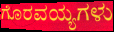
ಗೊರವಯ್ಯಗಳು